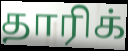
தாரிக்